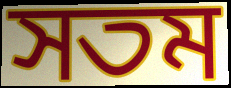
সতম